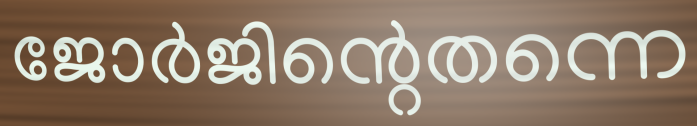
ജോർജിന്റെതന്നെ